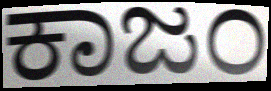
ಕಾಜಂ